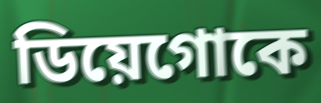
ডিয়েগোকে